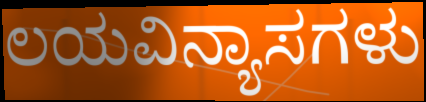
ಲಯವಿನ್ಯಾಸಗಳು